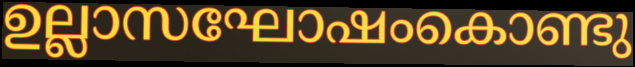
ഉല്ലാസഘോഷംകൊണ്ടു